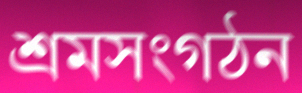
শ্রমসংগঠন